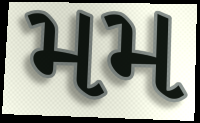
મમ